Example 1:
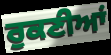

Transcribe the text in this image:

ਰੁਕਣੀਆਂ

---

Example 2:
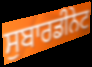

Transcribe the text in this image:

ਸੁਬਾਰਡੀਨੇਟ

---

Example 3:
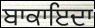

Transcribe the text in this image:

ਬਾਕਾਇਦਾ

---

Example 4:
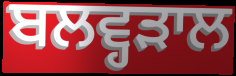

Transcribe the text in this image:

ਬਲਵ੍ਹੜਾਲ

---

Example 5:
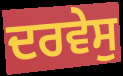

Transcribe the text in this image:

ਦਰਵੇਸੁ